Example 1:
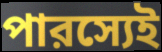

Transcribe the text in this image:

পারস্যেই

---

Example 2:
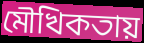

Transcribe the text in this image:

মৌখিকতায়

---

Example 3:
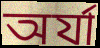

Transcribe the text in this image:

অর্যা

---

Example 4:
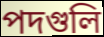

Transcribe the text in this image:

পদগুলি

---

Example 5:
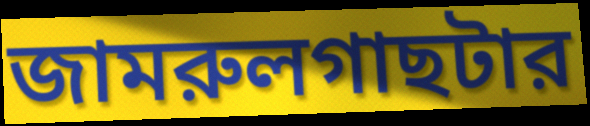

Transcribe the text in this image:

জামরুলগাছটার